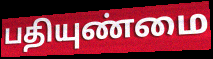
பதியுண்மை